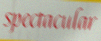
spectacular